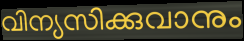
വിന്യസിക്കുവാനും